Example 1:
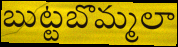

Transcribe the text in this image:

బుట్టబొమ్మలా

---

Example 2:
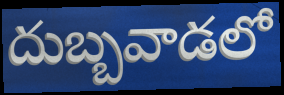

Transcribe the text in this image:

దుబ్బవాడలో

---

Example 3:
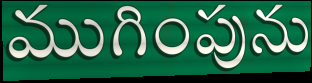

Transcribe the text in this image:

ముగింపును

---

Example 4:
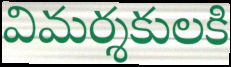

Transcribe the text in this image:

విమర్శకులకి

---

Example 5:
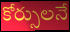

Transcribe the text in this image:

కోర్సులనే